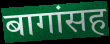
बागांसह